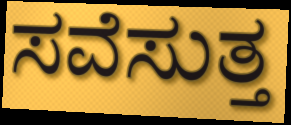
ಸವೆಸುತ್ತ